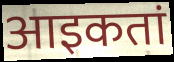
आइकतां